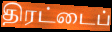
திரட்டைப்